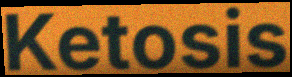
Ketosis